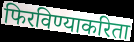
फिरविण्याकरिता